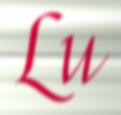
Lu